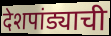
देशपांड्याची